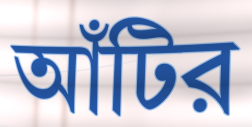
আঁটির